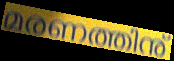
മരണത്തിനു്